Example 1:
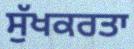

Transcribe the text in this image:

ਸੁੱਖਕਰਤਾ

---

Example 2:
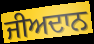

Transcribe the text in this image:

ਜੀਅਦਾਨ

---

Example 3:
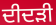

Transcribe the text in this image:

ਦੀਦੜੀ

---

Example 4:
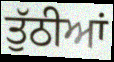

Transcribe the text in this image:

ਤੁੱਠੀਆਂ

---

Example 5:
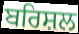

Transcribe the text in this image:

ਬਰਿਸ਼ਲ